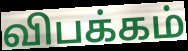
விபக்கம்